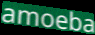
amoeba